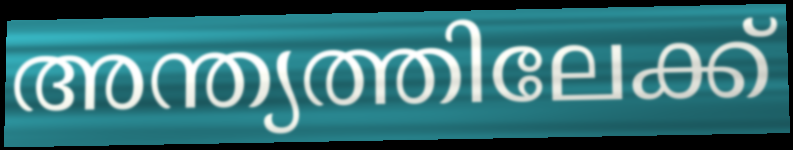
അന്ത്യത്തിലേക്ക്